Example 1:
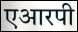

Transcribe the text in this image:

एआरपी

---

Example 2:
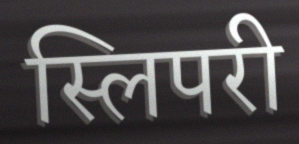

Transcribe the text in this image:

स्लिपरी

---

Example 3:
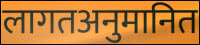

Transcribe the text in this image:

लागतअनुमानित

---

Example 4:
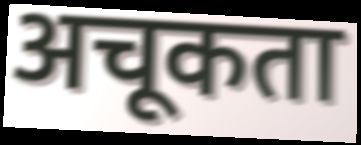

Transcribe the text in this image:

अचूकता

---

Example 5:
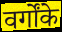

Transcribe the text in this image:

वर्गोंके